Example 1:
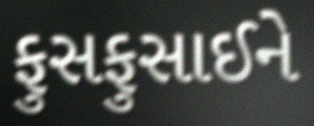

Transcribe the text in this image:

ફુસફુસાઈને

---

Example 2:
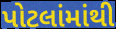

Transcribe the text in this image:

પોટલાંમાંથી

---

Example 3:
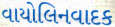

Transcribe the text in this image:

વાયોલિનવાદક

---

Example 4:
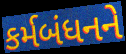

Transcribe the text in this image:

કર્મબંધનને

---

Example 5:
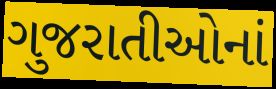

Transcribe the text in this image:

ગુજરાતીઓનાં